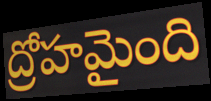
ద్రోహమైంది